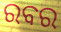
ରବର